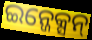
ଇନ୍ଜେକ୍ସନ୍